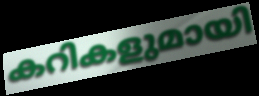
കറികളുമായി